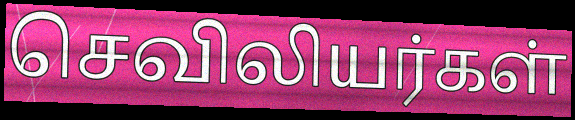
செவிலியர்கள்